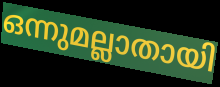
ഒന്നുമല്ലാതായി